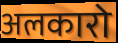
अलकारो